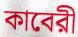
কাবেরী